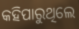
କହିପାରୁଥିଲେ